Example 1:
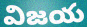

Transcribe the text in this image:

విజయ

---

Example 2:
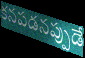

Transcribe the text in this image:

కనపడనప్పుడే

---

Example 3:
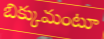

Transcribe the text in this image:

బిక్కుమంటూ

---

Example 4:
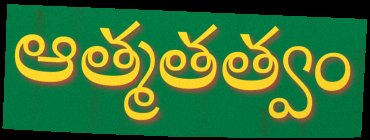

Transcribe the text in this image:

ఆత్మతత్వం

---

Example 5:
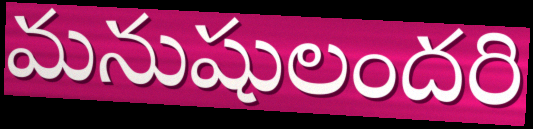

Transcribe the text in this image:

మనుషులందరి